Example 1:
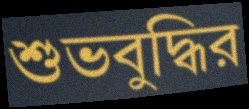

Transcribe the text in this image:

শুভবুদ্ধির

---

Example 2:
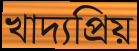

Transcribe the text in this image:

খাদ্যপ্রিয়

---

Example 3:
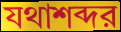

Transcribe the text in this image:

যথাশব্দর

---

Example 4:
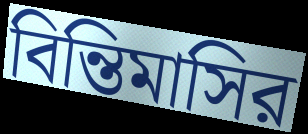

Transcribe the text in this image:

বিন্তিমাসির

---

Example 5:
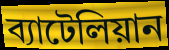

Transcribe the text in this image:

ব্যাটেলিয়ান